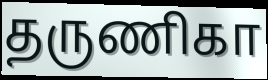
தருணிகா